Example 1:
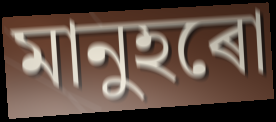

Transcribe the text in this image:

মানুহৰো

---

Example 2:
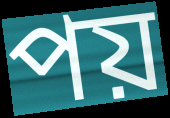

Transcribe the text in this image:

পয়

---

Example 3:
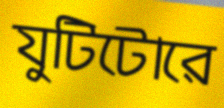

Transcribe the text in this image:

যুটিটোৱে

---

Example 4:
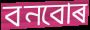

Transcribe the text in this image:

বনবোৰ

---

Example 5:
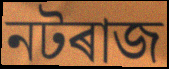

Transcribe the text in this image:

নটৰাজ